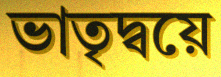
ভাতৃদ্বয়ে